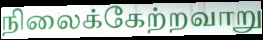
நிலைக்கேற்றவாறு